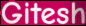
Gitesh